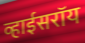
व्हाईसरॉय